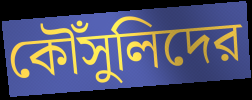
কৌঁসুলিদের